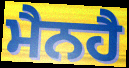
ਮੈਨਹੈ